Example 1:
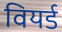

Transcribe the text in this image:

वियर्ड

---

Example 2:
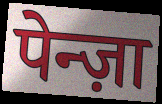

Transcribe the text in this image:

पेन्ज़ा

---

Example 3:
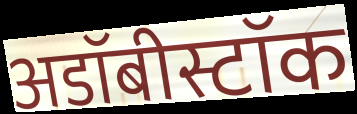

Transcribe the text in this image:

अडॉबीस्टॉक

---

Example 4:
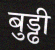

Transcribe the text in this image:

बुड्ढी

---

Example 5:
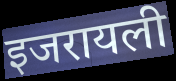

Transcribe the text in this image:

इजरायली